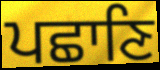
ਪਛਾਣਿ